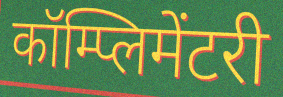
कॉम्प्लिमेंटरी